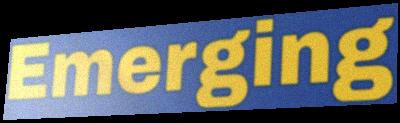
Emerging